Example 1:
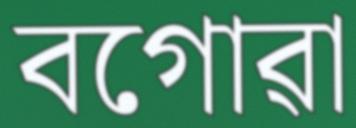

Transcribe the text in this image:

বগোৱা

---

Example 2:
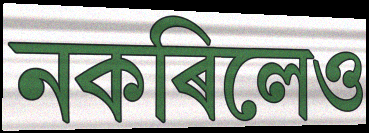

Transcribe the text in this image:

নকৰিলেও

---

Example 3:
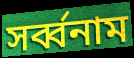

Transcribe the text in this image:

সৰ্ব্বনাম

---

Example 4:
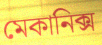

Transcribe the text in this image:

মেকানিক্স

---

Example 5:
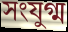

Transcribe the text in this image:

সংযুগ্ম